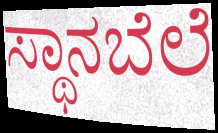
ಸ್ಥಾನಬೆಲೆ